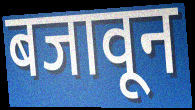
बजावून